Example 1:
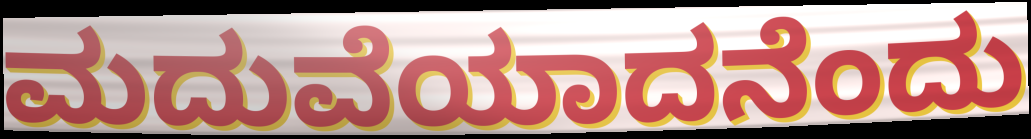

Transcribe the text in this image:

ಮದುವೆಯಾದನೆಂದು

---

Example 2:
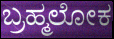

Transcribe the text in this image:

ಬ್ರಹ್ಮಲೋಕ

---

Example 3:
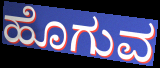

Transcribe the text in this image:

ಹೊಗುವ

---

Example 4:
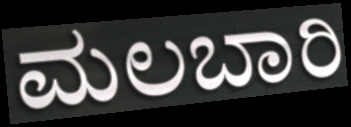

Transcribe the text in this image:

ಮಲಬಾರಿ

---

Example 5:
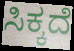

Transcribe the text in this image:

ಸಿಕ್ಕದೆ